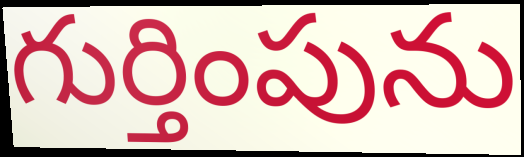
గుర్తింపును